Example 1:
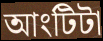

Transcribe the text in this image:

আংটিটা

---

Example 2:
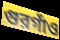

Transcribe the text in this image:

গুরগাঁও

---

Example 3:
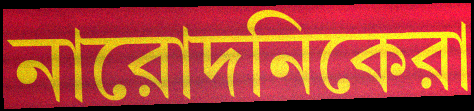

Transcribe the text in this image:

নারোদনিকেরা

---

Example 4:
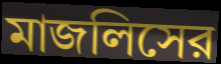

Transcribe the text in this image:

মাজলিসের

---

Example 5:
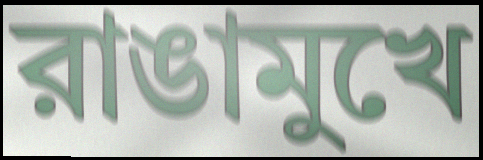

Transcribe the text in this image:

রাঙামুখে